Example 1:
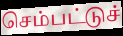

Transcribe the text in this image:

செம்பட்டுச்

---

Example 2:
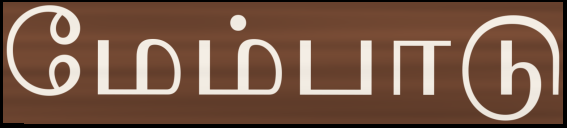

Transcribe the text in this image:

மேம்பாடு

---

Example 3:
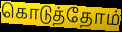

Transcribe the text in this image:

கொடுத்தோம்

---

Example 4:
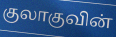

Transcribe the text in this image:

குலாகுவின்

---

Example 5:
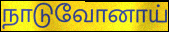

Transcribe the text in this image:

நாடுவோனாய்